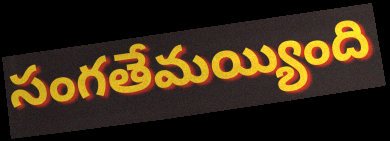
సంగతేమయ్యింది